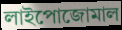
লাইপোজোমাল